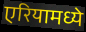
एरियामध्ये